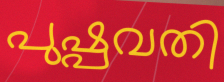
പുഷ്പവതി